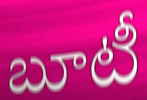
బూటీ